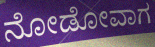
ನೋಡೋವಾಗ